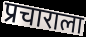
प्रचाराला